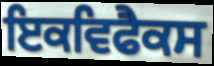
ਇਕਵਿਫੈਕਸ